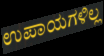
ಉಪಾಯಗಳಿಲ್ಲ